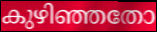
കുഴിഞ്ഞതോ